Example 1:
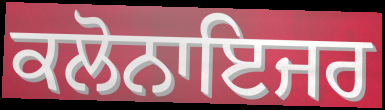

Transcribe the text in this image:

ਕਲੋਨਾਇਜਰ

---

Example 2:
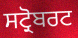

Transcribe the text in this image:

ਸਟ੍ਰੋਬਰਟ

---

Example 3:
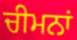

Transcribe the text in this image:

ਚੀਮਨਾਂ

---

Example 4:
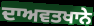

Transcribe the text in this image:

ਦਾਅਵਤਖਾਨੇ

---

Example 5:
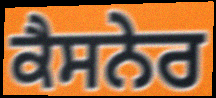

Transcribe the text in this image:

ਕੈਸਨੇਰ